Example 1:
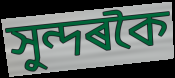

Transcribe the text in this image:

সুন্দৰকৈ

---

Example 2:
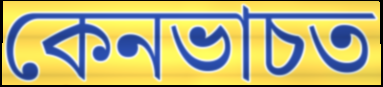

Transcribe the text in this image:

কেনভাচত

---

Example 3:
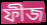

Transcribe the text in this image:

ফীজ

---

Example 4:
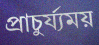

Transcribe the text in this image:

প্ৰাচুৰ্য্যময়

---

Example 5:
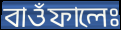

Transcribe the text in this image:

বাওঁফালেঃ